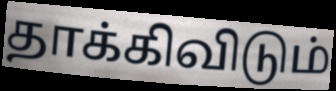
தாக்கிவிடும்